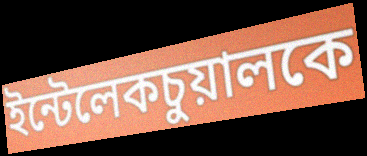
ইন্টেলেকচুয়ালকে